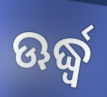
ଊର୍ଦ୍ଧ୍ୱ